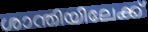
ശാന്തിയിലേക്ക്